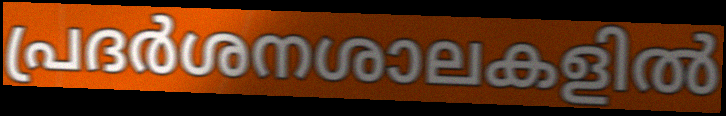
പ്രദർശനശാലകളിൽ